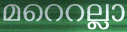
മറെറല്ലാ